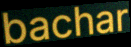
bachar